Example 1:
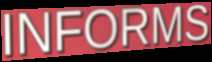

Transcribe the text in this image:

INFORMS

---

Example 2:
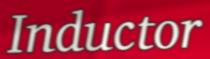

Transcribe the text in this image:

Inductor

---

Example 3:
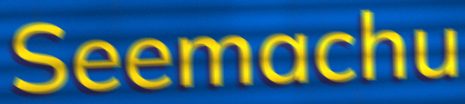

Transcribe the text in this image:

Seemachu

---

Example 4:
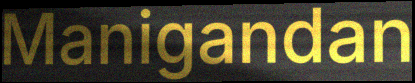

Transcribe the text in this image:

Manigandan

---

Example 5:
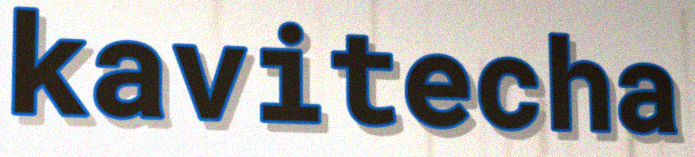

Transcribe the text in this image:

kavitecha